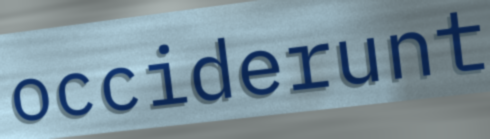
occiderunt